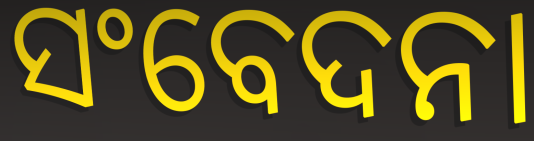
ସଂବେଦନା